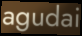
agudai